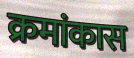
क्रमांकास